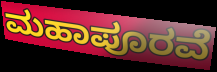
ಮಹಾಪೂರವೆ